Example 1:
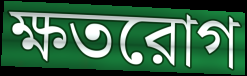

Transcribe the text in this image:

ক্ষতরোগ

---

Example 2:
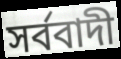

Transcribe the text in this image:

সর্ববাদী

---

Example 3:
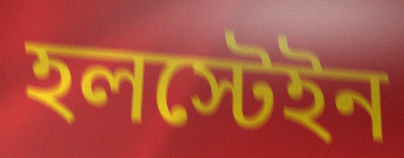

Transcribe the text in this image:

হলস্টেইন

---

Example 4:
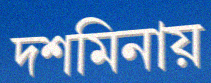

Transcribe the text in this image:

দশমিনায়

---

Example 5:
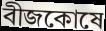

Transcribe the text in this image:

বীজকোষে